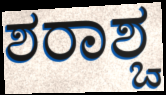
ಶರಾಶ್ಚ